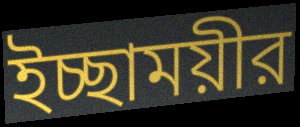
ইচ্ছাময়ীর